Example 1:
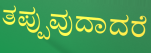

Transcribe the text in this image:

ತಪ್ಪುವುದಾದರೆ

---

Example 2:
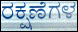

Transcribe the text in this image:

ರಕ್ಷಣೆಗಳ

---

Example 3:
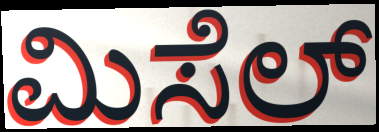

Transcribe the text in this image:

ಮಿಸೆಲ್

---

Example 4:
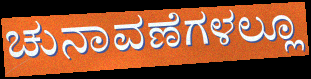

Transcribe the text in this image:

ಚುನಾವಣೆಗಳಲ್ಲೂ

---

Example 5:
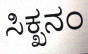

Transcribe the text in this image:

ಸಿಕ್ಖನಂ